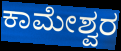
ಕಾಮೇಶ್ವರ